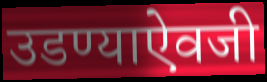
उडण्याऐवजी